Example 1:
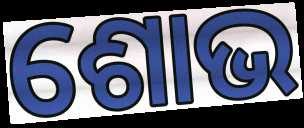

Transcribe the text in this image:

ଶୋଭ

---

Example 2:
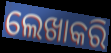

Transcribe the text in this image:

ଲେଖାକରି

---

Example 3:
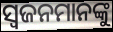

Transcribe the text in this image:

ସ୍ବଜନମାନଙ୍କୁ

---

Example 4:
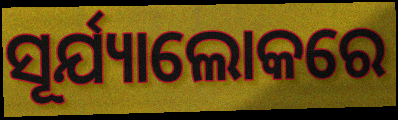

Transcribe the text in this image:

ସୂର୍ଯ୍ୟାଲୋକରେ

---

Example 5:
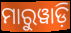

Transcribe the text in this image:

ମାରୁୱାଡ଼ି